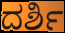
ದರ್ಶಿ